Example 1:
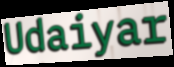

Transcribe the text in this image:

Udaiyar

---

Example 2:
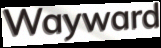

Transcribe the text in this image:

Wayward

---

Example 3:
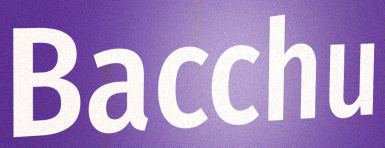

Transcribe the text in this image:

Bacchu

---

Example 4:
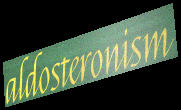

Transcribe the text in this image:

aldosteronism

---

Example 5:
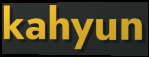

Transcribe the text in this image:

kahyun